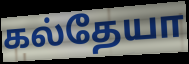
கல்தேயா